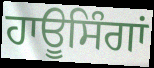
ਹਾਊਸਿੰਗਾਂ